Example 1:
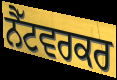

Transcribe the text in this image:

ਨੈੱਟਵਰਕਰ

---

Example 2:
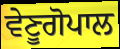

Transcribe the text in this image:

ਵੇਣੂਗੋਪਾਲ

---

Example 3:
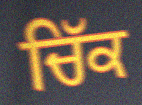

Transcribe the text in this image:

ਚਿੱਕ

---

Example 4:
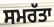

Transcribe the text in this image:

ਸਮਰੱਤਾ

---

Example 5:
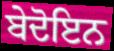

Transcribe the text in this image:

ਬੇਦੋਇਨ